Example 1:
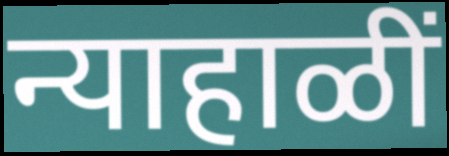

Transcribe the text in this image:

न्याहाळीं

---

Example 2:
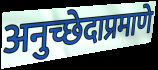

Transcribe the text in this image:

अनुच्छेदाप्रमाणे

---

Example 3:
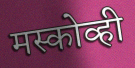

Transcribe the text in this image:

मस्कोव्ही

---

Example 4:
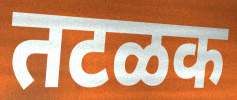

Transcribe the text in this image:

तटळक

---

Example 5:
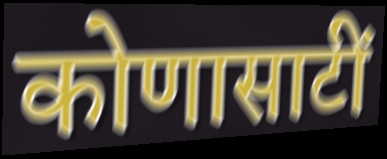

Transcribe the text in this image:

कोणासाटीं